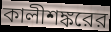
কালীশঙ্করের